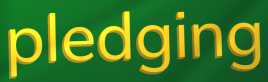
pledging